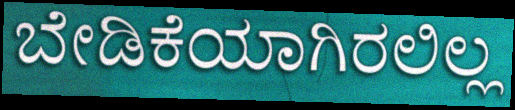
ಬೇಡಿಕೆಯಾಗಿರಲಿಲ್ಲ